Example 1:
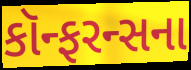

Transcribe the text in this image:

કૉન્ફરન્સના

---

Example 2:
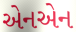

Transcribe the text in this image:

એનએન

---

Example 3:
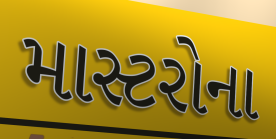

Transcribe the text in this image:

માસ્ટરોના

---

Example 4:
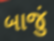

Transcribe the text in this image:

બાજું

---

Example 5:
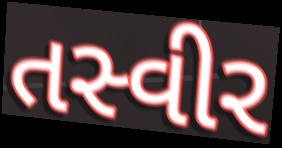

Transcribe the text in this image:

તસ્વીર